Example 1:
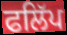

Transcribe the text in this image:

ਫਲਿੱਪ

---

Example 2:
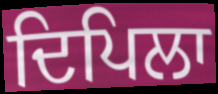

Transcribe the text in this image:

ਦਿਪਿਲਾ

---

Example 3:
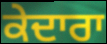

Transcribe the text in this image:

ਕੇਦਾਰਾ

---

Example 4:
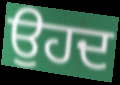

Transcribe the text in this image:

ਉਹਦ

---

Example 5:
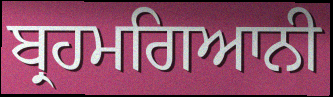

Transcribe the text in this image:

ਬ੍ਰਹਮਗਿਆਨੀ